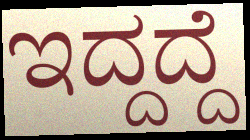
ಇದ್ದದ್ದೆ